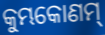
କୁମ୍ଭକୋଣମ୍